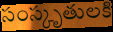
సంస్కృతులకి